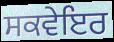
ਸਕਵੇਇਰ